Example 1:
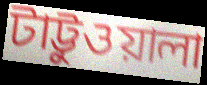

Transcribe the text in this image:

টাট্টুওয়ালা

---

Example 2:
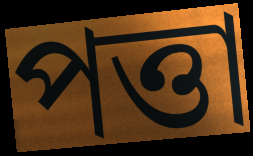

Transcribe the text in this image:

পত্তা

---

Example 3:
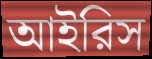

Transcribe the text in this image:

আইরিস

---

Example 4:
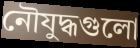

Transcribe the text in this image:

নৌযুদ্ধগুলো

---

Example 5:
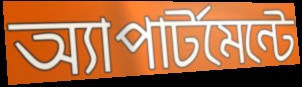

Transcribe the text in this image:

অ্যাপার্টমেন্টে